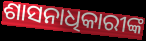
ଶାସନାଧିକାରୀଙ୍କ